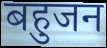
बहुजन